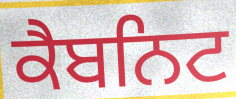
ਕੈਬਨਿਟ